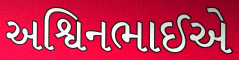
અશ્વિનભાઈએ